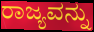
ರಾಜ್ಯವನ್ನು